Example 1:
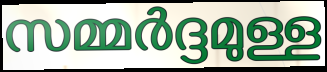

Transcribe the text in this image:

സമ്മർദ്ദമുള്ള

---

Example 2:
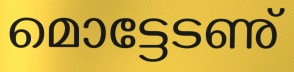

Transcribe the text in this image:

മൊട്ടേടണു്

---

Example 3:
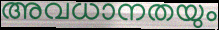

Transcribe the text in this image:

അവധാനതയും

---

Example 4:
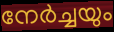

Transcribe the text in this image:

നേർച്ചയും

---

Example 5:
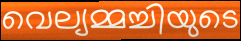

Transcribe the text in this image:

വെല്യമ്മച്ചിയുടെ